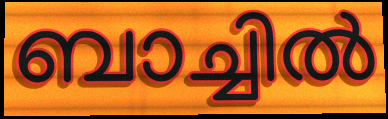
ബാച്ചിൽ